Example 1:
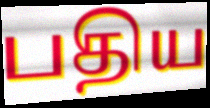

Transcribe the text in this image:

பதிய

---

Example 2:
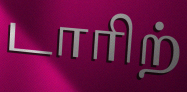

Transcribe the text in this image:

டாரிற்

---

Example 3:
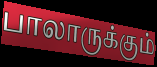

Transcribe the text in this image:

பாலாருக்கும்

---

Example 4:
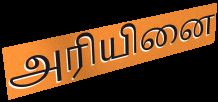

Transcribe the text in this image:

அரியினை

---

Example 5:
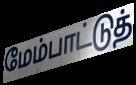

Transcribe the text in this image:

மேம்பாட்டுத்